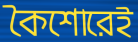
কৈশোরেই